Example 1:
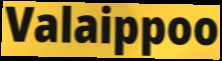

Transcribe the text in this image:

Valaippoo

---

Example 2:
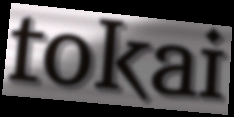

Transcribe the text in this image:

tokai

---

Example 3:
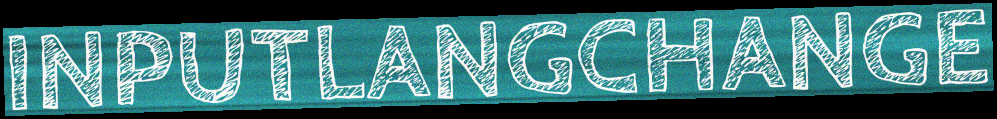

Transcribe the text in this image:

INPUTLANGCHANGE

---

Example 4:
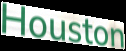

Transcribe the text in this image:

Houston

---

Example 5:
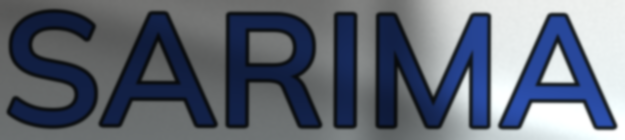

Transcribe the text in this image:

SARIMA